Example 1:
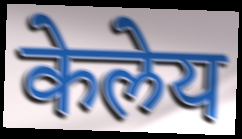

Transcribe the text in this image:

केलेय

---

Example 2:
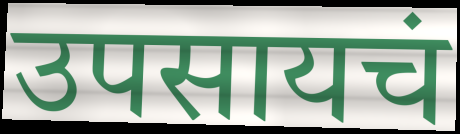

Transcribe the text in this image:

उपसायचं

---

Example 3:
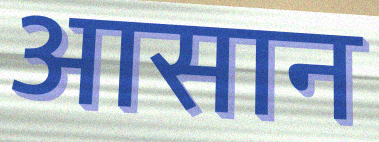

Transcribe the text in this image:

आसान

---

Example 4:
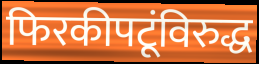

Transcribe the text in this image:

फिरकीपटूंविरुद्ध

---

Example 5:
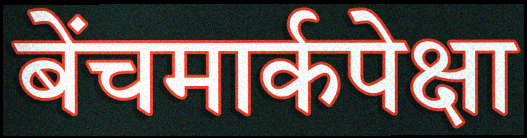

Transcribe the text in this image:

बेंचमार्कपेक्षा